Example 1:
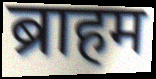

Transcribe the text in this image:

ब्राहम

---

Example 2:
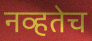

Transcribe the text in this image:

नव्हतेच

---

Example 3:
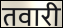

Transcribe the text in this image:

तवारी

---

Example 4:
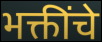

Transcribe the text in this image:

भक्तींचे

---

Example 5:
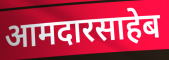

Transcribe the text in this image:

आमदारसाहेब